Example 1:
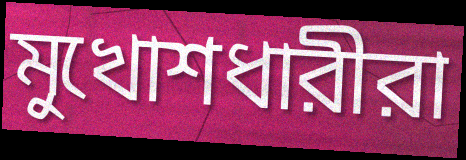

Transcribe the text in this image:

মুখোশধারীরা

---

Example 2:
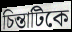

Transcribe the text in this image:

চিন্তাটিকে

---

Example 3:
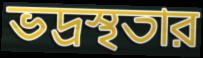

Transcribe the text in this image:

ভদ্রস্থতার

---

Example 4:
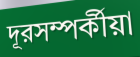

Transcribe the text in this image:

দূরসম্পর্কীয়া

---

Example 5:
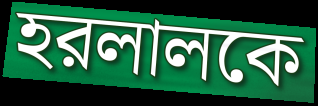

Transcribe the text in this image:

হরলালকে